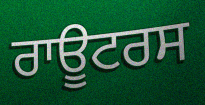
ਰਾਊਟਰਸ